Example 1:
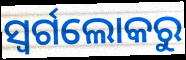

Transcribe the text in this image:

ସ୍ଵର୍ଗଲୋକରୁ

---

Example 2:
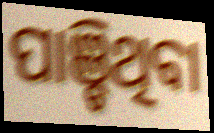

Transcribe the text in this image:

ପାଞ୍ଚିଥିବା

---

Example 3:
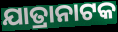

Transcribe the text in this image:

ଯାତ୍ରାନାଟକ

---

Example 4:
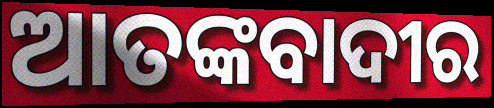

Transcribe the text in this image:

ଆତଙ୍କବାଦୀର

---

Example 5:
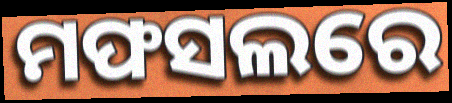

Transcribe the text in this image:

ମଫସଲରେ